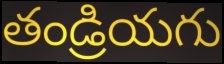
తండ్రియగు